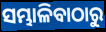
ସମ୍ଭାଳିବାଠାରୁ